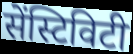
सेंस्टिविटी